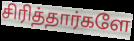
சிரித்தார்களே